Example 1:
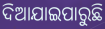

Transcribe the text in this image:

ଦିଆଯାଇପାରୁଛି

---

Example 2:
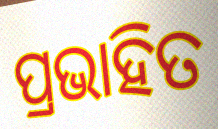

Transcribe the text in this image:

ପ୍ରଭାହିତ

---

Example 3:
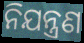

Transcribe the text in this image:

ନିଯନ୍ତ୍ରଣ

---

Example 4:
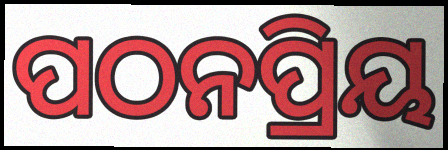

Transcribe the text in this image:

ପଠନପ୍ରିୟ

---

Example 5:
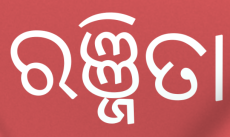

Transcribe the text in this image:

ରଞ୍ଜିତା